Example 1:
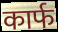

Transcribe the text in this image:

कार्फ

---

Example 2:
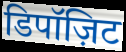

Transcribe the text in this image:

डिपॉज़िट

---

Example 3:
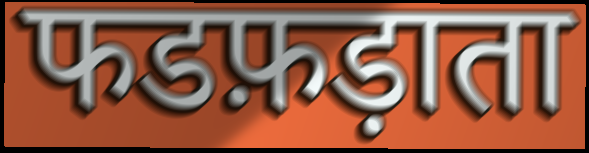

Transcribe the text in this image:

फडफ़ड़ाता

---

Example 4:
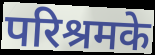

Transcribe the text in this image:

परिश्रमके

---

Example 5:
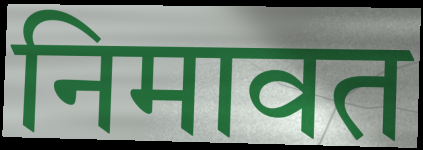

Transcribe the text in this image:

निमावत